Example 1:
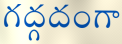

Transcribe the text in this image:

గద్గదంగా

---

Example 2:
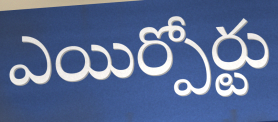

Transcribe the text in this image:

ఎయిర్పోర్టు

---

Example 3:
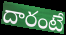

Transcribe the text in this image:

దారంటే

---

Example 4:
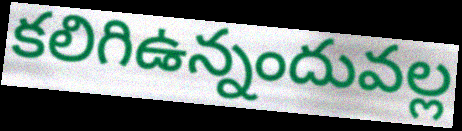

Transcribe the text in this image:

కలిగిఉన్నందువల్ల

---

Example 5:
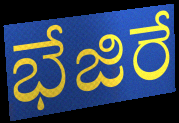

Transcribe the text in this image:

భేజిరే